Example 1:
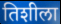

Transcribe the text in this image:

तिशीला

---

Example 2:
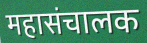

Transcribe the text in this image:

महासंचालक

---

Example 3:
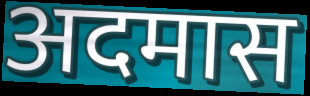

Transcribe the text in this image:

अदमास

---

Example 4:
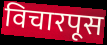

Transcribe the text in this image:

विचारपूस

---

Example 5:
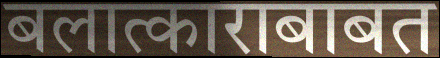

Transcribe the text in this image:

बलात्काराबाबत